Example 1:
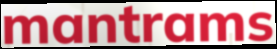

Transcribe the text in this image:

mantrams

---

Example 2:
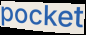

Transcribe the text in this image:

pocket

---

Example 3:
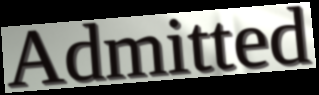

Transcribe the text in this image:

Admitted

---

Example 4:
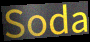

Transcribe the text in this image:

Soda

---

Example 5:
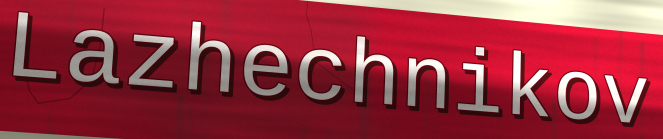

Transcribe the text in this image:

Lazhechnikov